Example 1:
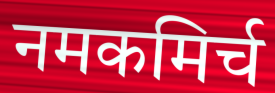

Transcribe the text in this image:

नमकमिर्च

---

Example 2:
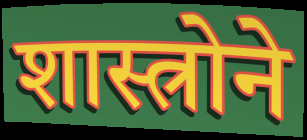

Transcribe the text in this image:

शास्त्रोने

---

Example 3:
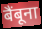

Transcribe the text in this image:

बैंबूना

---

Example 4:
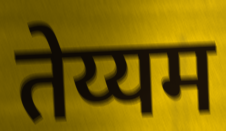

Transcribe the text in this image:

तेय्यम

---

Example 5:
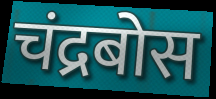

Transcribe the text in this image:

चंद्रबोस